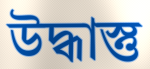
উদ্ধাস্তু